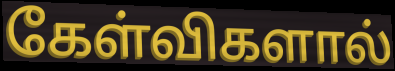
கேள்விகளால்